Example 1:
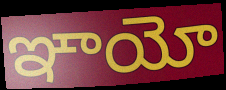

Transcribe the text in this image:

ఞాయో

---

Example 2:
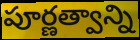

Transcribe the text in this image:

పూర్ణత్వాన్ని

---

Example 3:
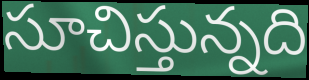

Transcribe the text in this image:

సూచిస్తున్నది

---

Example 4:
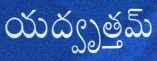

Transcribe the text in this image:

యద్వృత్తమ్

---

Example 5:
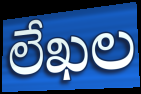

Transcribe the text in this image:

లేఖల